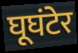
घूघंटेर